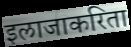
इलाजाकरिता